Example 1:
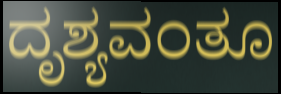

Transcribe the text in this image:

ದೃಶ್ಯವಂತೂ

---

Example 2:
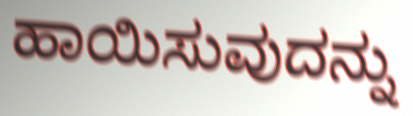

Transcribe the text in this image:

ಹಾಯಿಸುವುದನ್ನು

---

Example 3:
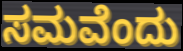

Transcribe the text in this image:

ಸಮವೆಂದು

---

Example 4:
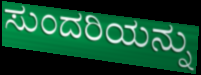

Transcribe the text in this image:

ಸುಂದರಿಯನ್ನು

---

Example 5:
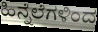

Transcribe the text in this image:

ಹಿನ್ನೆಲೆಗಳಿಂದ